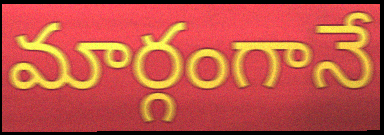
మార్గంగానే